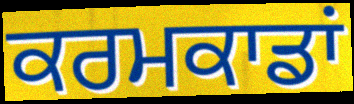
ਕਰਮਕਾਡਾਂ